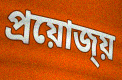
প্ৰয়োজ্য়